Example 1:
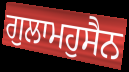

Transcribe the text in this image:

ਗੁਲਾਮਹੁਸੈਨ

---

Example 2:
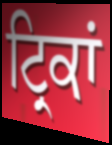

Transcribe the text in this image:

ਟ੍ਰਿਕਾਂ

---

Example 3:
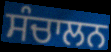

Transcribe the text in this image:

ਸੰਚਾਲਨ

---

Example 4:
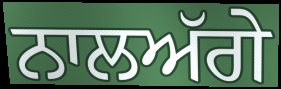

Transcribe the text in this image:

ਨਾਲਅੱਗੇ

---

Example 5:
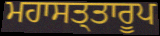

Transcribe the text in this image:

ਮਹਾਸਤ੍ਤਾਰੂਪ